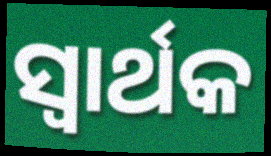
ସ୍ବାର୍ଥକ